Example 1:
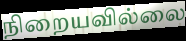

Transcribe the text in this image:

நிறையவில்லை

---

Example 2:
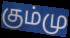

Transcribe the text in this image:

கும்மு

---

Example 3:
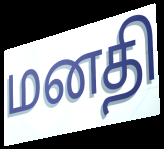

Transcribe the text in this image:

மனதி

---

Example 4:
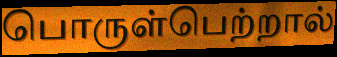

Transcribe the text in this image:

பொருள்பெற்றால்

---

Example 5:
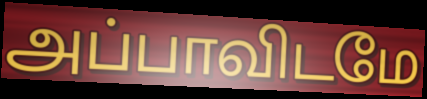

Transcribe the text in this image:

அப்பாவிடமே